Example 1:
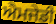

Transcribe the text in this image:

ਐਮਜੇਡੀ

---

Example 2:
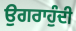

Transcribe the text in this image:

ਉਗਰਾਹੁੰਦੀ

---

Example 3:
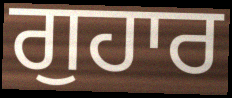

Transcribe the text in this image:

ਗੁਹਾਰ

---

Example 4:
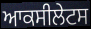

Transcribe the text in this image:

ਆਕਸੀਲੇਟਸ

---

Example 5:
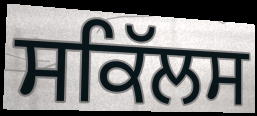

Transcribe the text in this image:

ਸਕਿੱਲਸ